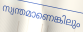
സ്വന്തമാണെങ്കിലും